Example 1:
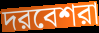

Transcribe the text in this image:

দরবেশরা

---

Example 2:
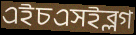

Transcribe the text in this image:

এইচএসইব্লগ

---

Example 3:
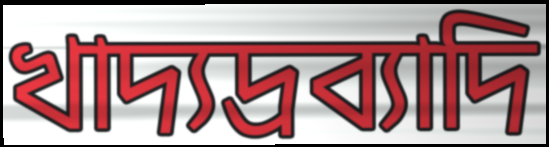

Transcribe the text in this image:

খাদ্যদ্রব্যাদি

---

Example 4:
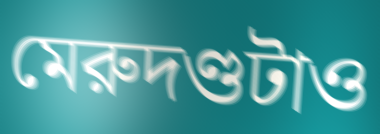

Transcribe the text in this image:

মেরুদণ্ডটাও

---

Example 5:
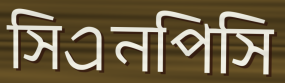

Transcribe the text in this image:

সিএনপিসি